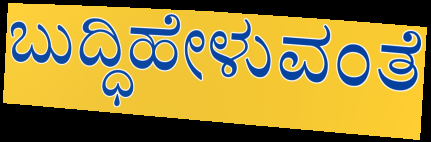
ಬುದ್ಧಿಹೇಳುವಂತೆ